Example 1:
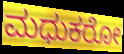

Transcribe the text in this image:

ಮಧುಕರೋ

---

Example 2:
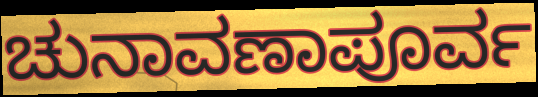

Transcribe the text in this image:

ಚುನಾವಣಾಪೂರ್ವ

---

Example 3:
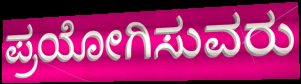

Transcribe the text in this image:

ಪ್ರಯೋಗಿಸುವರು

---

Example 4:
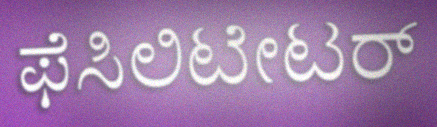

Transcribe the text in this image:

ಫೆಸಿಲಿಟೇಟರ್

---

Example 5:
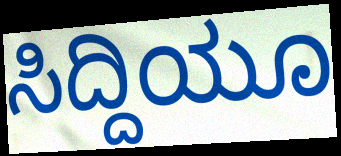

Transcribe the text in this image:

ಸಿದ್ದಿಯೂ